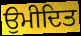
ਉਮੀਦਿਤ